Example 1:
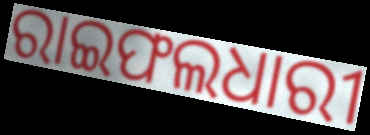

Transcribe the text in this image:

ରାଇଫଲଧାରୀ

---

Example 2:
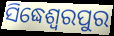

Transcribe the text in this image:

ସିଦ୍ଧେଶ୍ଵରପୁର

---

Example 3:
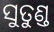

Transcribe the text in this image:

ସୁତୁଣ୍ଡ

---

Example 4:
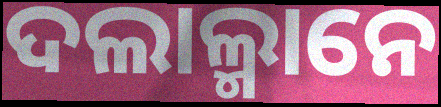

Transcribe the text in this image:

ଦଲାଲ୍ମାନେ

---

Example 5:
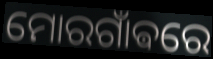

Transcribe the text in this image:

ମୋରଗାଁଵରେ